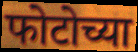
फोटोच्या